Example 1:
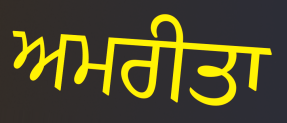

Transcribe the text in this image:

ਅਮਰੀਤਾ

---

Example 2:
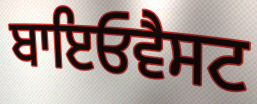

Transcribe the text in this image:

ਬਾਇਓਵੈਸਟ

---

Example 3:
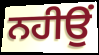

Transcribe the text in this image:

ਨਹੀਉਂ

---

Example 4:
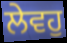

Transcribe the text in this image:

ਲੇਵਹੁ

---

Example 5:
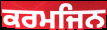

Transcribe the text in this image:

ਕਰਮਜਿਨ